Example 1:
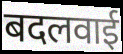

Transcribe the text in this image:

बदलवाई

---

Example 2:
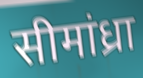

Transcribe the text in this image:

सीमांध्रा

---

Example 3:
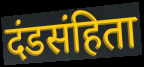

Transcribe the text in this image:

दंडसंहिता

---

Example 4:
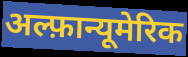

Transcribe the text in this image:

अल्फ़ान्यूमेरिक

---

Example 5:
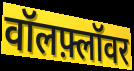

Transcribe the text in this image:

वॉलफ़्लॉवर